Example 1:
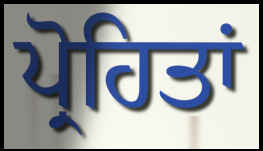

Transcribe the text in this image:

ਪ੍ਰੋਹਿਤਾਂ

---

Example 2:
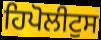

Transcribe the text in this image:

ਹਿਪੋਲੀਟੁਸ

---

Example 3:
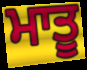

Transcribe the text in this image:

ਮਾਤੂ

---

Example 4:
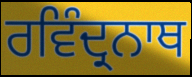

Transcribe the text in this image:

ਰਵਿੰਦ੍ਰਨਾਥ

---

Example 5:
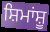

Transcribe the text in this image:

ਸ਼ਿਮਾਂਸ਼ੂ